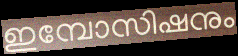
ഇമ്പോസിഷനും